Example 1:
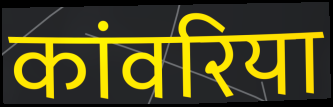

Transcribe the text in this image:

कांवरिया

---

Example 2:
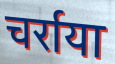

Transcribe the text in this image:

चर्राया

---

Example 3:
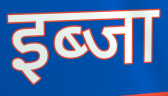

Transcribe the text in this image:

इब्जा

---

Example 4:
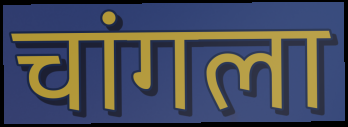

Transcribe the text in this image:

चांगला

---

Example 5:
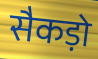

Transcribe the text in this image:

सैकड़ो